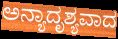
ಅನ್ಯಾದೃಶ್ಯವಾದ